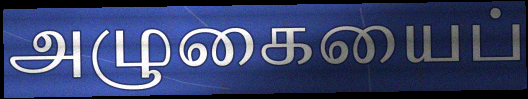
அழுகையைப்